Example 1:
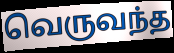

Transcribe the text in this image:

வெருவந்த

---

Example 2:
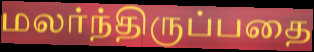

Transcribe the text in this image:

மலர்ந்திருப்பதை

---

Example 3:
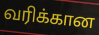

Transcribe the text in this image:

வரிக்கான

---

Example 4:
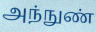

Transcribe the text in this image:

அந்நுண்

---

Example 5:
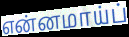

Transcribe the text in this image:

என்னமாய்ப்